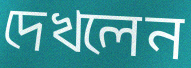
দেখলেন